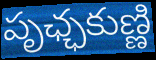
పృఛ్ఛకుణ్ణి